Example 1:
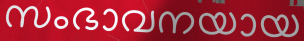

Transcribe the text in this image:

സംഭാവനയായ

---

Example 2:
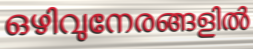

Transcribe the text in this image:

ഒഴിവുനേരങ്ങളിൽ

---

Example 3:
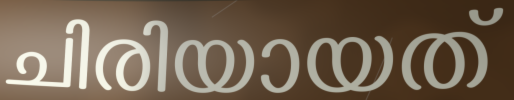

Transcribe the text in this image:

ചിരിയായത്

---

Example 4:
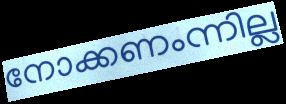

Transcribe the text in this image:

നോക്കണംന്നില്ല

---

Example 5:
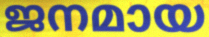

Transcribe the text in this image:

ജനമായ